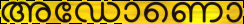
അഡോണൊ